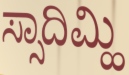
ಸ್ಸಾದಿಮ್ಹಿ